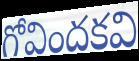
గోవిందకవి